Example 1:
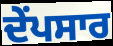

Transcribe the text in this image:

ਦੇਂਪਸਾਰ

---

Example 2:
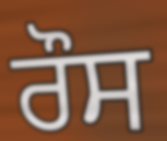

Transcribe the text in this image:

ਰੌਸ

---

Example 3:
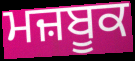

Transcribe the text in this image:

ਮਜ਼ਬੂਕ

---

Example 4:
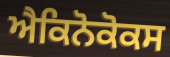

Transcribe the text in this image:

ਐਕਿਨੋਕੋਕਸ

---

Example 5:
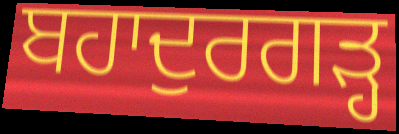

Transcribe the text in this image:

ਬਹਾਦੁਰਗੜ੍ਹ